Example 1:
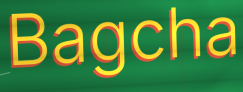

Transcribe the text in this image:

Bagcha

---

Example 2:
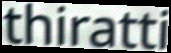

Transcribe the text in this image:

thiratti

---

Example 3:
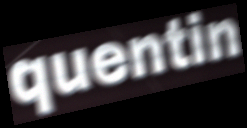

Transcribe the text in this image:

quentin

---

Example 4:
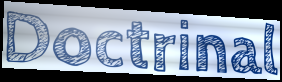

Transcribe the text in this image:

Doctrinal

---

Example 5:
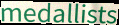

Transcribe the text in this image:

medallists